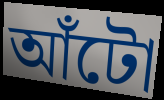
আঁটো